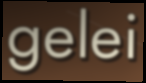
gelei